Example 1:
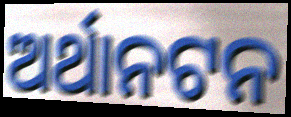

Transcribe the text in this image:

ଅର୍ଥାନଟନ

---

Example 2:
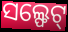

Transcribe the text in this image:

ସଲ୍ଫେଟ୍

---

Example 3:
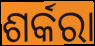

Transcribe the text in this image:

ଶର୍କରା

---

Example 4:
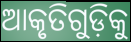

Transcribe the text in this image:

ଆକୃତିଗୁଡ଼ିକୁ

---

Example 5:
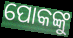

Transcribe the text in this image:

ପୋକଙ୍କୁ